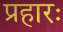
प्रहारः